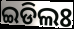
ଇଡିଲଃ